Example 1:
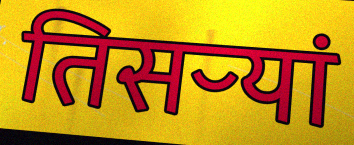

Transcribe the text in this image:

तिसऱ्यां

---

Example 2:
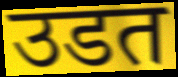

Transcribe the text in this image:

उडत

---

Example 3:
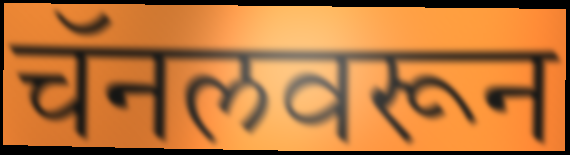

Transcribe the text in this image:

चॅनलवरून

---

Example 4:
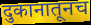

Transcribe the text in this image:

दुकानातूनच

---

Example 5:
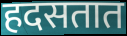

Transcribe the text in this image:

हदसतात